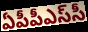
ఏపీపీఎస్‌సీ